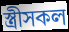
স্ত্ৰীসকল